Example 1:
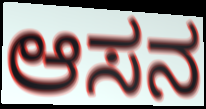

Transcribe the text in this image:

ಆಸನ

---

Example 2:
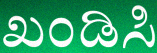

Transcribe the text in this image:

ಖಂಡಿಸಿ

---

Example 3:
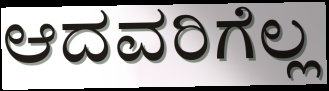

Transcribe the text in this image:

ಆದವರಿಗೆಲ್ಲ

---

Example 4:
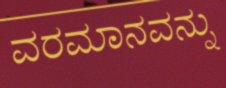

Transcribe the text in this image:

ವರಮಾನವನ್ನು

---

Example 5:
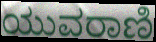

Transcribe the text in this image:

ಯುವರಾಣಿ